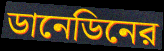
ডানেডিনের